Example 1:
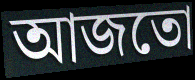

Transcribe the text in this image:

আজতো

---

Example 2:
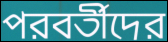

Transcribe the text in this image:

পরবর্তীদের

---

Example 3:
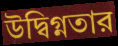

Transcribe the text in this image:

উদ্বিগ্নতার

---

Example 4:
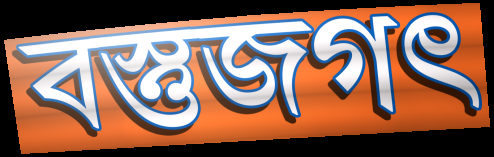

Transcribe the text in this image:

বস্তুজগৎ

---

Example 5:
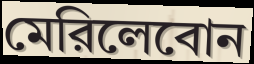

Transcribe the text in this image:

মেরিলেবোন